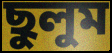
ছুলুম